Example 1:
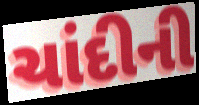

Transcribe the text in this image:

ચાંદીની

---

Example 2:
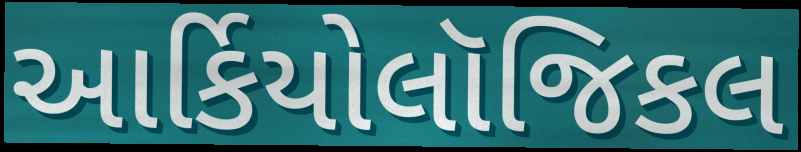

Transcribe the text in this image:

આર્કિયોલૉજિકલ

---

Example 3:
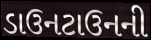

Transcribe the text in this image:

ડાઉનટાઉનની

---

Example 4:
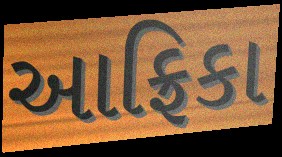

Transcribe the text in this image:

આફ્રિકા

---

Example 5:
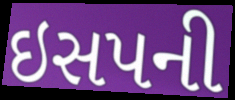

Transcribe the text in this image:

ઇસપની